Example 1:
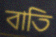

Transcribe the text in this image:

বাতি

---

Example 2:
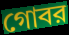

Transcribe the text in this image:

গোবর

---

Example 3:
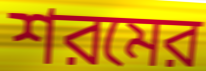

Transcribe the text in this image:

শরমের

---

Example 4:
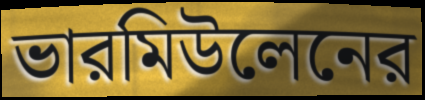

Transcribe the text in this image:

ভারমিউলেনের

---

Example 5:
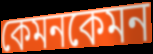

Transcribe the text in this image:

কেমনকেমন